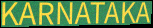
KARNATAKA